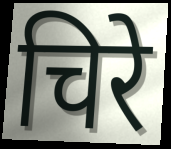
चिरे